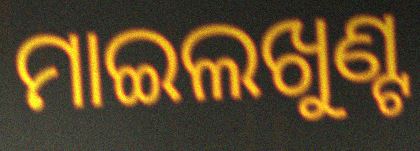
ମାଇଲଖୁଣ୍ଟ